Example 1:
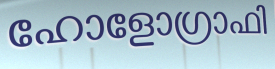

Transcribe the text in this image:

ഹോളോഗ്രാഫി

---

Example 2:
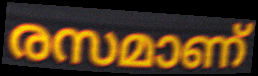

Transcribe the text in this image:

രസമാണ്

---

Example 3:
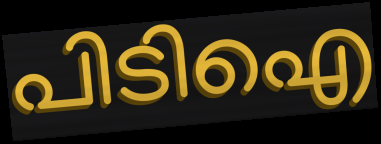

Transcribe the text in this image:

പിടിഐ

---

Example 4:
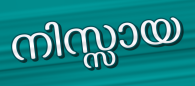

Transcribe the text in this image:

നിസ്സായ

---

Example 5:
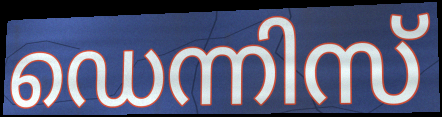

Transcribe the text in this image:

ഡെന്നിസ്